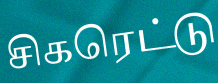
சிகரெட்டு